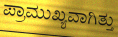
ಪ್ರಾಮುಖ್ಯವಾಗಿತ್ತು